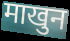
माखुन